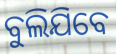
ବୁଲିଯିବେ